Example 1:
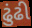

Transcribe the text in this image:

ઢુંઢી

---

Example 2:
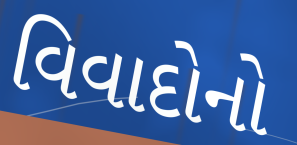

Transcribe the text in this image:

વિવાદોનો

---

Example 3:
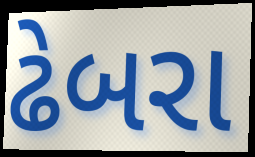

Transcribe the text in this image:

ઢેબરા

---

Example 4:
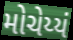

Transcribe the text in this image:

મોચેય્યં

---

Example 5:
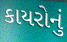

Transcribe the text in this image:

કાયરોનું